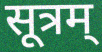
सूत्रम्